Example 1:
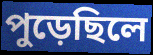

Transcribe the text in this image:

পুড়েছিলে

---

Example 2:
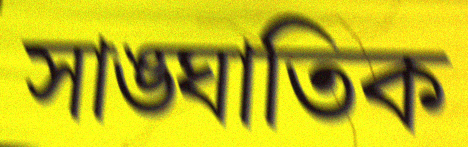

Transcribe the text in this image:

সাঙ্ঘাতিক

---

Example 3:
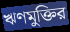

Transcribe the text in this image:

ঋণমুক্তির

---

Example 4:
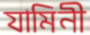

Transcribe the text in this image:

যামিনী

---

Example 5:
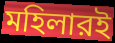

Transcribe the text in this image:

মহিলারই